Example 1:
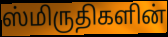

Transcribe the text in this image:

ஸ்மிருதிகளின்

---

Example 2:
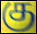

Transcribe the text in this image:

கு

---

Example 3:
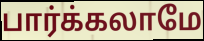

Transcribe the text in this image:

பார்க்கலாமே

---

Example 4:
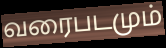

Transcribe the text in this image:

வரைபடமும்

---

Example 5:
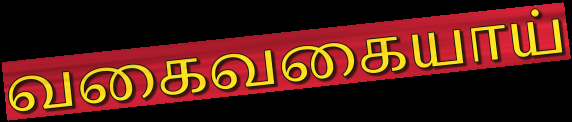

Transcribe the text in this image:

வகைவகையாய்